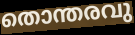
തൊന്തരവു